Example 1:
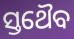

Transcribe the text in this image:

ସ୍ତଥୈବ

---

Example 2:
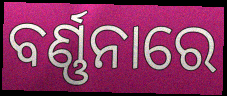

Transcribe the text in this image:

ବର୍ଣ୍ଣନାରେ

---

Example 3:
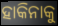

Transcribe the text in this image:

ହାକିନାକୁ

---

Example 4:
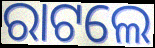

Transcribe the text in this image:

ରାଟଲେ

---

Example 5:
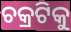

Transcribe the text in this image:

ଚକ୍ରଟିକୁ